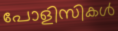
പോളിസികൾ